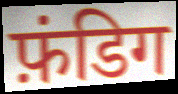
फ़ंडिग